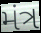
મંત્ર